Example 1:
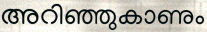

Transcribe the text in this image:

അറിഞ്ഞുകാണും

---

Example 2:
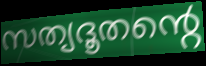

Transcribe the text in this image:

സത്യദൂതന്റെ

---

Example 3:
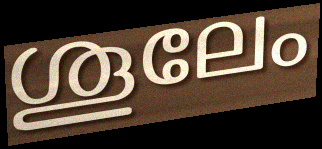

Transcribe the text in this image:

ശൂലേം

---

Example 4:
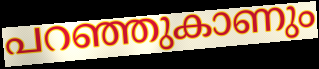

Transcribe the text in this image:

പറഞ്ഞുകാണും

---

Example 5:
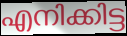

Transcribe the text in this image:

എനിക്കിട്ട